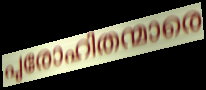
പുരോഹിതന്മാരെ